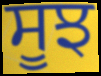
ਸੂਝ